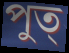
পুত্